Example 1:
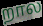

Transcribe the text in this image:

றால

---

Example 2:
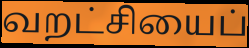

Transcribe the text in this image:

வறட்சியைப்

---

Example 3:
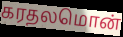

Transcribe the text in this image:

கரதலமொன்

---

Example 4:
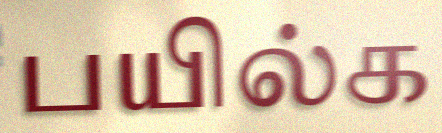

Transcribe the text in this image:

பயில்க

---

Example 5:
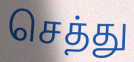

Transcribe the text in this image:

செத்து